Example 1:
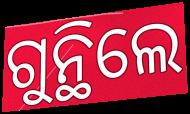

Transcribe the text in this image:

ଗୁନ୍ଥିଲେ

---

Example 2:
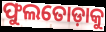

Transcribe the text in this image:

ଫୁଲତୋଡ଼ାକୁ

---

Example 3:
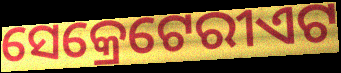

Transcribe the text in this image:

ସେକ୍ରେଟେରୀଏଟ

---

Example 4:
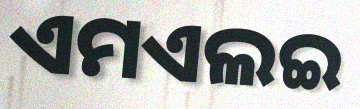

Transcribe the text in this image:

ଏମଏଲଇ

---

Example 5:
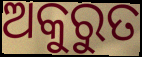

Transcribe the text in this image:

ଅକୁରୁତ